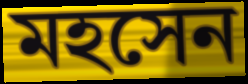
মহসেন